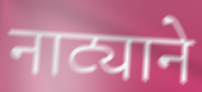
नाट्याने